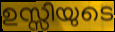
ഉസ്സിയുടെ